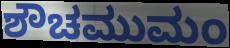
ಶೌಚಮುಮಂ